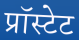
प्रॉस्टेट